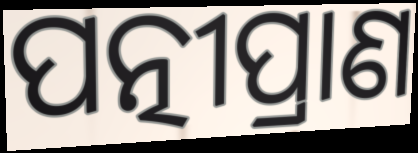
ପତ୍ନୀପ୍ରାଣ